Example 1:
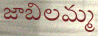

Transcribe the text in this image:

జాబిలమ్మ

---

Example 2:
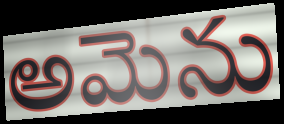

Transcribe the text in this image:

అమెను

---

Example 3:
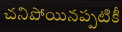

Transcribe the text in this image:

చనిపోయినప్పటికీ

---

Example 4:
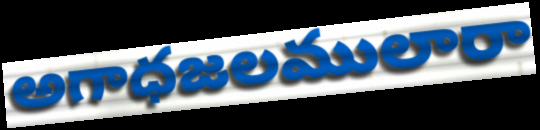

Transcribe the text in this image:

అగాధజలములారా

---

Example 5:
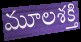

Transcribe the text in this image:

మూలశక్తి